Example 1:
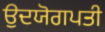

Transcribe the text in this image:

ਉਦਯੋਗਪਤੀ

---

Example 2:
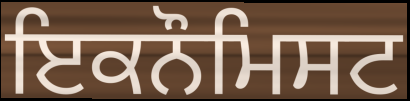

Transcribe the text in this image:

ਇਕਨੌਮਿਸਟ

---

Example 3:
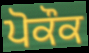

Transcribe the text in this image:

ਪੋਕੌਕ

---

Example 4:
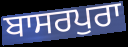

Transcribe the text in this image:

ਬਾਸਰਪੁਰਾ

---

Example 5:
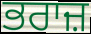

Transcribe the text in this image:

ਭਰਾਜ਼